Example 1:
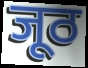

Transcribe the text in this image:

जूठ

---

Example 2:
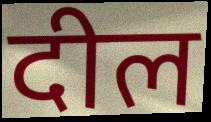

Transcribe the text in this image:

दील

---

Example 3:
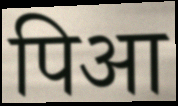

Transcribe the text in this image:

पिआ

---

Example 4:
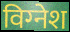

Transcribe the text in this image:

विग्‍नेश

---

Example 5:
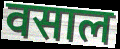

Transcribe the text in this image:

वसाल